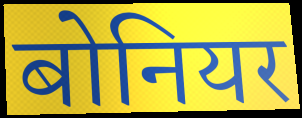
बोनियर